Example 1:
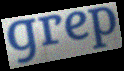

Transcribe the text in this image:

grep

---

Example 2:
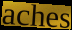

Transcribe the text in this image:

aches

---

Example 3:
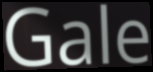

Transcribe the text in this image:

Gale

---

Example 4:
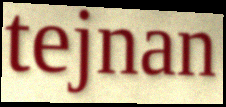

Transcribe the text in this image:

tejnan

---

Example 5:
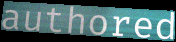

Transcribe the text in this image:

authored